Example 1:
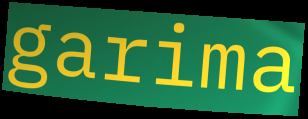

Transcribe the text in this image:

garima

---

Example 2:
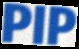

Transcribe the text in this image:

PIP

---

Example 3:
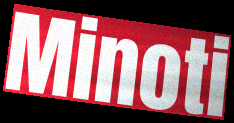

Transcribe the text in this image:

Minoti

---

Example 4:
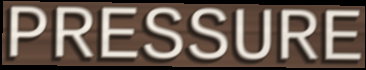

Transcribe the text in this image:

PRESSURE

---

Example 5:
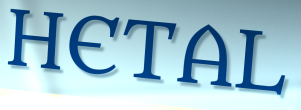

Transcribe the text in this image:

HETAL